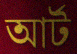
আৰ্ট